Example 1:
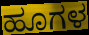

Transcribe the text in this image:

ಹೂಗಳ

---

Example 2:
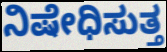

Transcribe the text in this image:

ನಿಷೇಧಿಸುತ್ತ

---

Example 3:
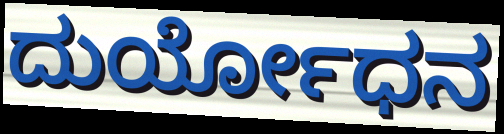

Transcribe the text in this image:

ದುರ್ಯೋಧನ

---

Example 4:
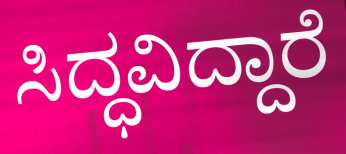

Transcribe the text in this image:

ಸಿದ್ಧವಿದ್ದಾರೆ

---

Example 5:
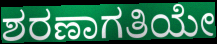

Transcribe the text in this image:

ಶರಣಾಗತಿಯೇ